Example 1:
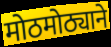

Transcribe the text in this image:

मोठमोठ्याने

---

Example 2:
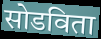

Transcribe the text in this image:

सोडविता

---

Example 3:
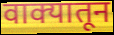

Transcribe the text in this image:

वाक्यातून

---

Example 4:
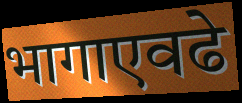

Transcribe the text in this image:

भागाएवढे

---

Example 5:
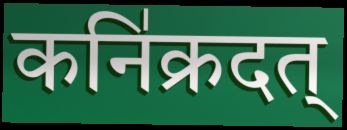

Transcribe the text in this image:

कनि॑क्रदत्